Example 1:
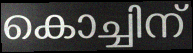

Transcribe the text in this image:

കൊച്ചിന്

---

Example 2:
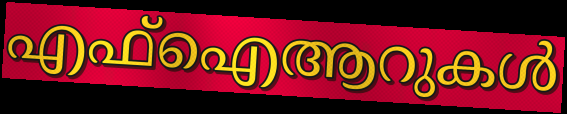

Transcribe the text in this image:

എഫ്ഐആറുകൾ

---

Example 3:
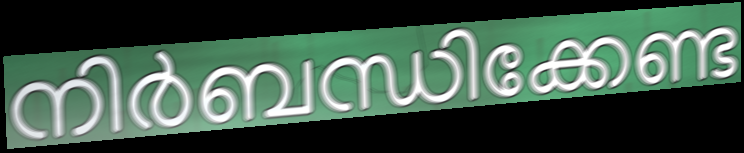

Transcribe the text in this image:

നിർബന്ധിക്കേണ്ട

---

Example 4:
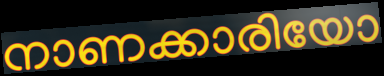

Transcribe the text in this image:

നാണക്കാരിയോ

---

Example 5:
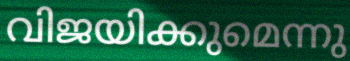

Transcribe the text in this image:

വിജയിക്കുമെന്നു